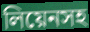
লিয়েনসহ